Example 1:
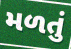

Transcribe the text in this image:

મળતું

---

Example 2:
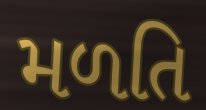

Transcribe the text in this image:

મળતિ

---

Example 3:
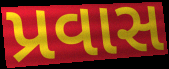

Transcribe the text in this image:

પ્રવાસ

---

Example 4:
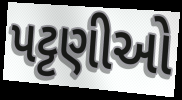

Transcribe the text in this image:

પટ્ટણીઓ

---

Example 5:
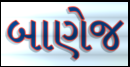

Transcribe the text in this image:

બાણેજ